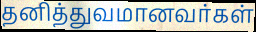
தனித்துவமானவர்கள்